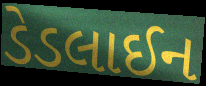
ડેડલાઈન